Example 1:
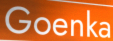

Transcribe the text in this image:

Goenka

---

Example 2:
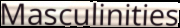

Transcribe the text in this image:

Masculinities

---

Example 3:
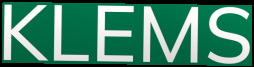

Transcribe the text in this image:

KLEMS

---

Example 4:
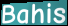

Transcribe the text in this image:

Bahis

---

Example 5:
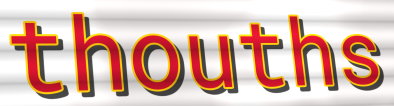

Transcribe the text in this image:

thouths